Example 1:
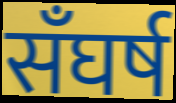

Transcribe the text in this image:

सँघर्ष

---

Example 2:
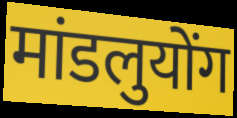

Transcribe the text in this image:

मांडलुयोंग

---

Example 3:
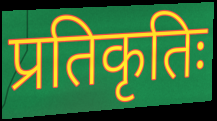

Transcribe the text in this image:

प्रतिकृतिः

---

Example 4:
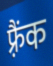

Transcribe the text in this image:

फ़्रैंक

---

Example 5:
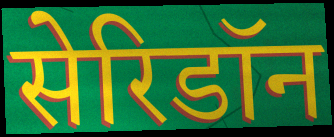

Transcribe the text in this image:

सेरिडॉन